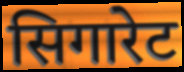
सिगारेट